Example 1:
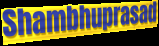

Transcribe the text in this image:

Shambhuprasad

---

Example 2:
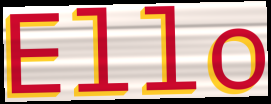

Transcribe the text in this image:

Ello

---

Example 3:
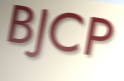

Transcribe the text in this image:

BJCP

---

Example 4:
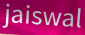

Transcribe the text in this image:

jaiswal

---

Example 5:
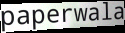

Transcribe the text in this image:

paperwala